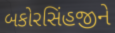
બકોરસિંહજીને